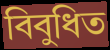
বিবুধিত